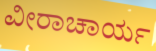
ವೀರಾಚಾರ್ಯ